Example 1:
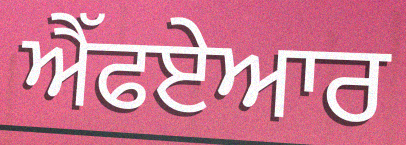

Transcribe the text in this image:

ਐੱਫਏਆਰ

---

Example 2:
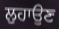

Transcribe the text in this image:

ਲੁਹਾਉਣ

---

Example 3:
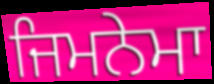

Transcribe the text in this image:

ਜਿਮਨੇਮਾ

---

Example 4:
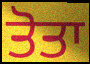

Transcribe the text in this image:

ਤੋਤਾ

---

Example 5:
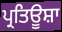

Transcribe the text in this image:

ਪ੍ਰਤਿਊਸ਼ਾ